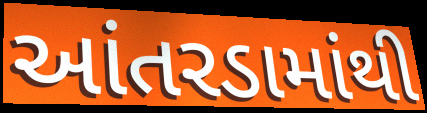
આંતરડામાંથી